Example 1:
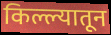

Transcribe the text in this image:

किल्ल्यातून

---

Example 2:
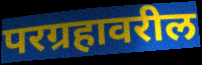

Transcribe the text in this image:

परग्रहावरील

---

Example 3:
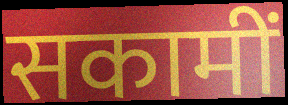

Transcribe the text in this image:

सकामीं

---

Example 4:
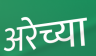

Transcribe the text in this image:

अरेच्या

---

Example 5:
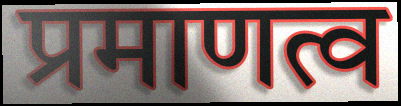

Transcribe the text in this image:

प्रमाणत्व